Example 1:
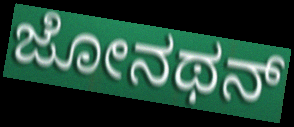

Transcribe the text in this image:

ಜೋನಥನ್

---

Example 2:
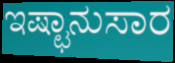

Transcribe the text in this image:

ಇಷ್ಟಾನುಸಾರ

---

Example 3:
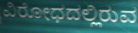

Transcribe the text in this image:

ವಿರೋಧದಲ್ಲಿರುವ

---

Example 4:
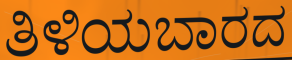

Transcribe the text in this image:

ತಿಳಿಯಬಾರದ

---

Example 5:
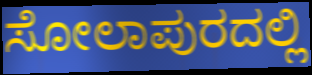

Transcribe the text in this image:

ಸೋಲಾಪುರದಲ್ಲಿ